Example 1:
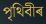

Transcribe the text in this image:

পৃথিবীৰ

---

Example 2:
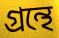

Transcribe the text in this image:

গ্ৰন্থে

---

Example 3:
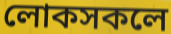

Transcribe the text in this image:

লোকসকলে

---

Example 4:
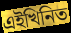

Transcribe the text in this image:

এইখিনিত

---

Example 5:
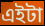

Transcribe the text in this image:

এইটা